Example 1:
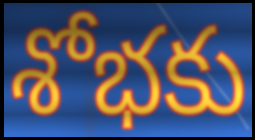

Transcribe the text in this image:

శోభకు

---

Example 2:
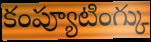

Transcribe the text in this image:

కంప్యూటింగ్కు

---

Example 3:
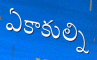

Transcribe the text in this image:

ఏకాకుల్ని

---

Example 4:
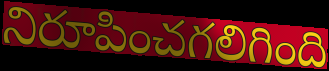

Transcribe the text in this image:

నిరూపించగలిగింది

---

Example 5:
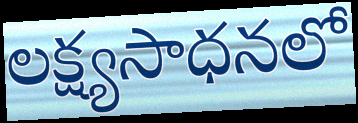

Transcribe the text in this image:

లక్ష్యసాధనలో